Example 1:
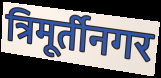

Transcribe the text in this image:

त्रिमूर्तीनगर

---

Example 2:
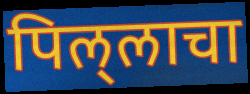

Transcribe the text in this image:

पिल्लाचा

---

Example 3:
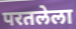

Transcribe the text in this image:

परतलेला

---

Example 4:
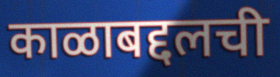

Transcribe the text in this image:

काळाबद्दलची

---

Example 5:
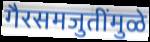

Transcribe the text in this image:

गैरसमजुतींमुळे